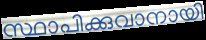
സ്ഥാപിക്കുവാനായി